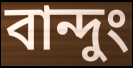
বান্দুং